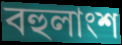
বহুলাংশ